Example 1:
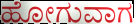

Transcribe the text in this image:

ಹೋಗುವಾಗ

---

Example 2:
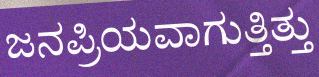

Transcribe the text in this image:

ಜನಪ್ರಿಯವಾಗುತ್ತಿತ್ತು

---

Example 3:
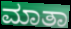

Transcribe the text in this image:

ಮಾತಾ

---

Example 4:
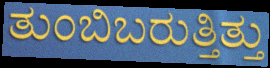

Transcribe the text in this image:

ತುಂಬಿಬರುತ್ತಿತ್ತು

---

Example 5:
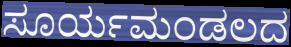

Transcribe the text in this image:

ಸೂರ್ಯಮಂಡಲದ